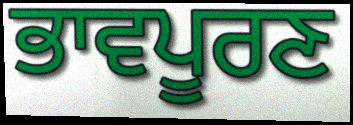
ਭਾਵਪੂਰਣ